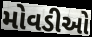
મોવડીઓ